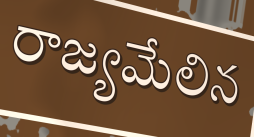
రాజ్యమేలిన